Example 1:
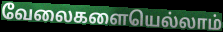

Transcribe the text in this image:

வேலைகளையெல்லாம்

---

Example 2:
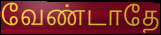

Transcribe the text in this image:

வேண்டாதே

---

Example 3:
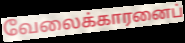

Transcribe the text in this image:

வேலைக்காரனைப்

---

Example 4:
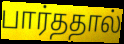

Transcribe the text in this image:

பார்ததால்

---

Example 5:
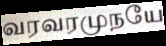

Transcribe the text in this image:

வரவரமுநயே